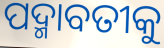
ପଦ୍ମାବତୀକୁ